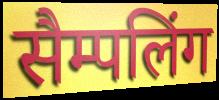
सैम्पलिंग